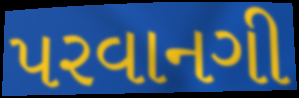
પરવાનગી